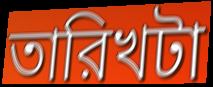
তারিখটা